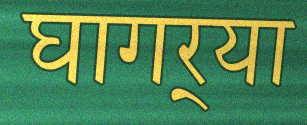
घागर्या